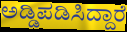
ಅಡ್ಡಿಪಡಿಸಿದ್ದಾರೆ